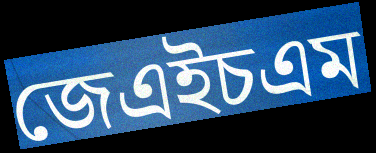
জেএইচএম